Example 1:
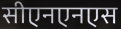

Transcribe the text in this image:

सीएनएनएस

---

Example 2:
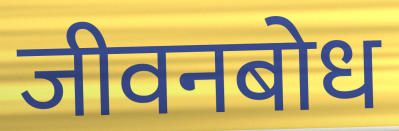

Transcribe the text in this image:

जीवनबोध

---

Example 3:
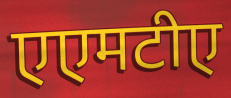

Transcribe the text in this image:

एएमटीए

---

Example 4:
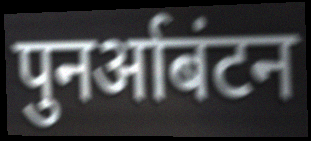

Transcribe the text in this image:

पुनर्आबंटन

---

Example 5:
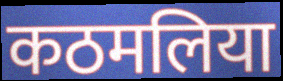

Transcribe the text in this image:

कठमलिया